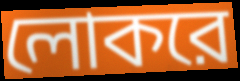
লোকরে